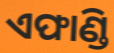
ଏଫାଣ୍ଡି